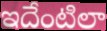
ఇదేంటిలా